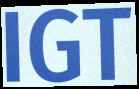
IGT